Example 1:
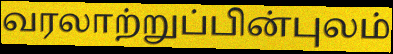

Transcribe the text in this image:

வரலாற்றுப்பின்புலம்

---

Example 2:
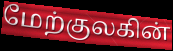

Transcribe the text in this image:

மேற்குலகின்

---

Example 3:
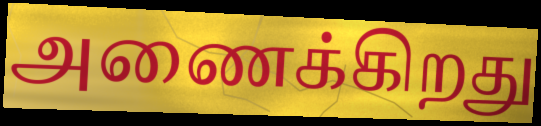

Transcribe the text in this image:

அணைக்கிறது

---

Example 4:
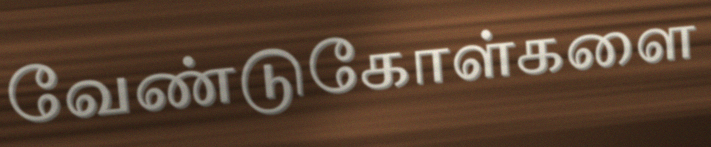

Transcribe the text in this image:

வேண்டுகோள்களை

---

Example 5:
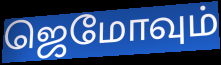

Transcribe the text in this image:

ஜெமோவும்